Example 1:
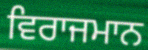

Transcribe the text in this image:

ਵਿਰਾਜਮਾਨ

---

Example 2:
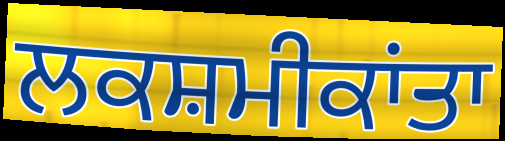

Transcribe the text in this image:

ਲਕਸ਼ਮੀਕਾਂਤਾ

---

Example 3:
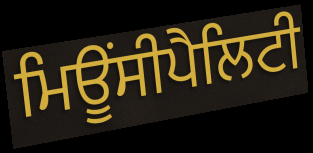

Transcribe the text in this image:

ਮਿਊਂਸੀਪੈਲਿਟੀ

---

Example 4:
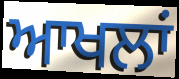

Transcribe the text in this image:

ਆਖਲਾਂ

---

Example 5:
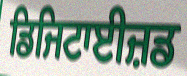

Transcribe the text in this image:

ਡਿਜਿਟਾਈਜ਼ਡ